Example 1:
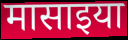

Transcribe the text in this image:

मासाइया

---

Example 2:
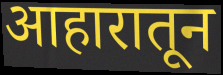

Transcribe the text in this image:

आहारातून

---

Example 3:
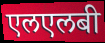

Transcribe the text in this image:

एलएलबी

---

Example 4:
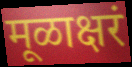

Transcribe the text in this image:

मूळाक्षरं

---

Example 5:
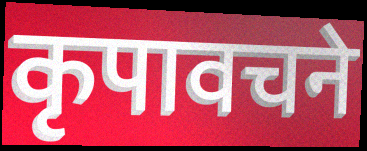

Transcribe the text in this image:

कृपावचने